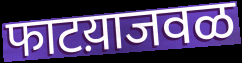
फाटय़ाजवळ